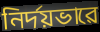
নিৰ্দয়ভাৱে